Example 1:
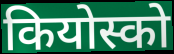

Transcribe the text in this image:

कियोस्को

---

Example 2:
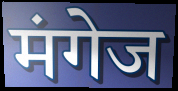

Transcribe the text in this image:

मंगेज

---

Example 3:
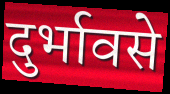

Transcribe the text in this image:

दुर्भावसे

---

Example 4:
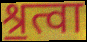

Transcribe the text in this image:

श्र॒त्वा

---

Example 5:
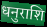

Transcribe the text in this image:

धनुराशि